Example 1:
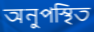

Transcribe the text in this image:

অনুপস্থিত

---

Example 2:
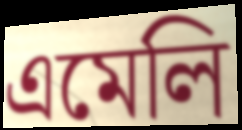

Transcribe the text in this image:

এমেলি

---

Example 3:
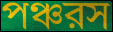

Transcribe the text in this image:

পঞ্চরস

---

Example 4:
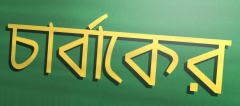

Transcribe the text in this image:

চার্বাকের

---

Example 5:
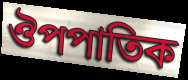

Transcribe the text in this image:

ঔপপাতিক